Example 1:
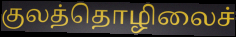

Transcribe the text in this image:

குலத்தொழிலைச்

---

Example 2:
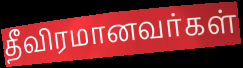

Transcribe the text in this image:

தீவிரமானவர்கள்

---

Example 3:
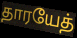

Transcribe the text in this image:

தாரயேத்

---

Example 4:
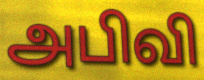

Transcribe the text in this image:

அபிவி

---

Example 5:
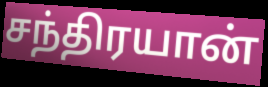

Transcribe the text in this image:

சந்திரயான்